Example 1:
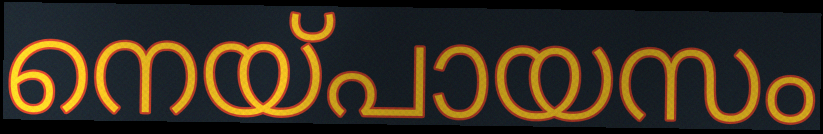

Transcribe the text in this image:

നെയ്പായസം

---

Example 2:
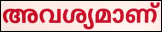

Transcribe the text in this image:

അവശ്യമാണ്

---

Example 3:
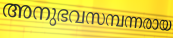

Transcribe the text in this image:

അനുഭവസമ്പന്നരായ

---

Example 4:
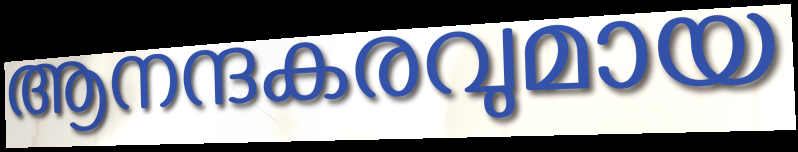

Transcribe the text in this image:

ആനന്ദകരവുമായ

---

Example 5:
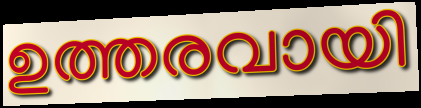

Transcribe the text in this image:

ഉത്തരവായി